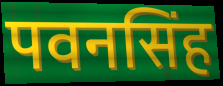
पवनसिंह